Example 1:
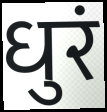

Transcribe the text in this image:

धुरं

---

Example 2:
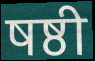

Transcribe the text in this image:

षष्ठी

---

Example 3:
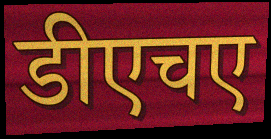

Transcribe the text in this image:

डीएचए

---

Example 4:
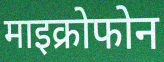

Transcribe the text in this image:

माइक्रोफोन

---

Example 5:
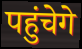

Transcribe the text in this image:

पहुंचेगे